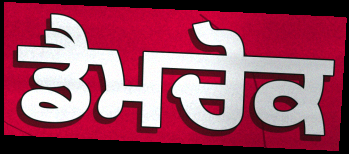
ਡੈਮਚੋਕ